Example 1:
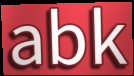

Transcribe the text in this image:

abk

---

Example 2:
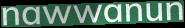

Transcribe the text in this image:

nawwanun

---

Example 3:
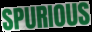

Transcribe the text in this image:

SPURIOUS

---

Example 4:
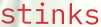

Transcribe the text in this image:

stinks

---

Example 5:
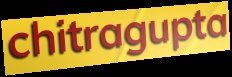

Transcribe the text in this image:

chitragupta